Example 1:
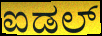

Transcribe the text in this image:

ಐಡಲ್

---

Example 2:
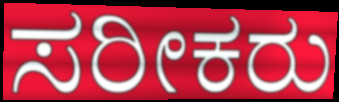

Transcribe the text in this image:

ಸರೀಕರು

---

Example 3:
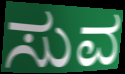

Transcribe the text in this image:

ಸುವ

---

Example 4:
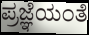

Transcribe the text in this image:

ಪ್ರಜ್ಞೆಯಂತೆ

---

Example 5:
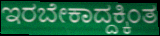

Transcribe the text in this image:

ಇರಬೇಕಾದ್ದಕ್ಕಿಂತ